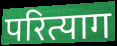
परित्याग